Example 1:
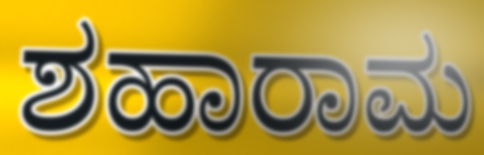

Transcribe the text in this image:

ಶಹಾರಾಮ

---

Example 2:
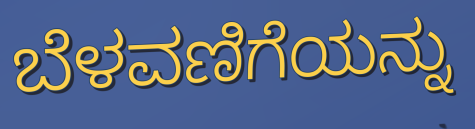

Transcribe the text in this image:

ಬೆಳವಣಿಗೆಯನ್ನು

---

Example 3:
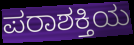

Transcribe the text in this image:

ಪರಾಶಕ್ತಿಯ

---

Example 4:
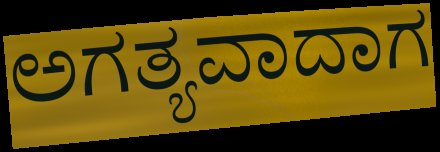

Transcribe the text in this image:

ಅಗತ್ಯವಾದಾಗ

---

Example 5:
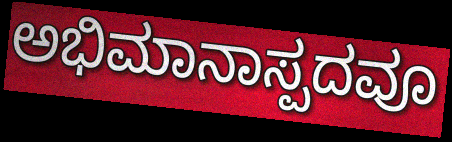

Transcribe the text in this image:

ಅಭಿಮಾನಾಸ್ಪದವೂ